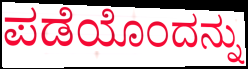
ಪಡೆಯೊಂದನ್ನು